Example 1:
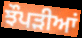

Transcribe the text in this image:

ਝੌਪੜੀਆਂ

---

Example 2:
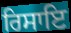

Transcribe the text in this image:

ਰਿਸਾਇ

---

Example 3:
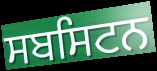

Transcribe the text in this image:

ਸਬਸਿਟਨ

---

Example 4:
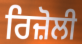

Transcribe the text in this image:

ਰਿਜ਼ੋਲੀ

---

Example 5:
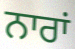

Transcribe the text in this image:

ਨਾਰਾਂ